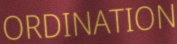
ORDINATION